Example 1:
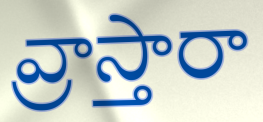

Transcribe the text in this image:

వ్రాస్తారా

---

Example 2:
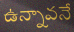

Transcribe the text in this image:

ఉన్నావనే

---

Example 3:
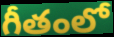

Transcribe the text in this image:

గీతంలో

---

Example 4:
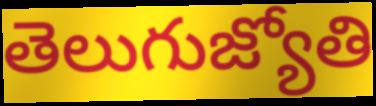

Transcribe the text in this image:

తెలుగుజ్యోతి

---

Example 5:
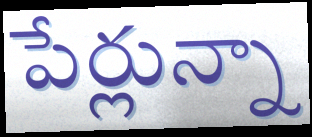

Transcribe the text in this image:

పేర్లున్నా